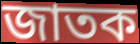
জাতক